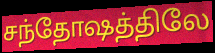
சந்தோஷத்திலே